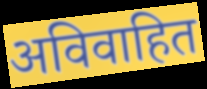
अविवाहित